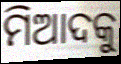
ମିଆଦକୁ